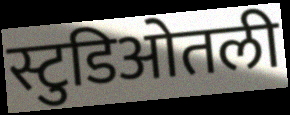
स्टुडिओतली